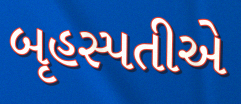
બૃહસ્પતીએ